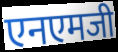
एनएमजी